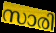
സാരി